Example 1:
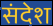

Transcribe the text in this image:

संदेश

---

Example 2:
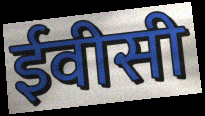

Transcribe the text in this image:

ईवीसी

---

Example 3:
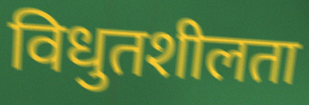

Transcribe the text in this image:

विधुतशीलता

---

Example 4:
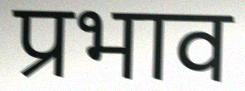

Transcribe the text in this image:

प्रभाव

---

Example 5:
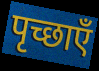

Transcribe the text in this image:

पृच्छाएँ